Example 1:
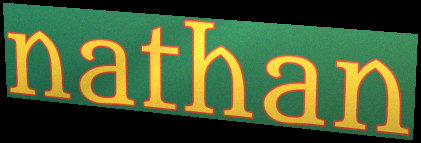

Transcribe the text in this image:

nathan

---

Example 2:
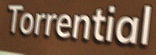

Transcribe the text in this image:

Torrential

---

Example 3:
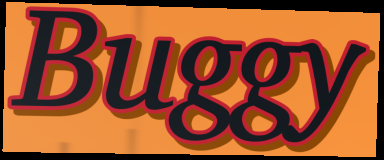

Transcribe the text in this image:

Buggy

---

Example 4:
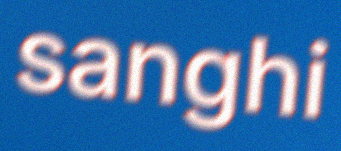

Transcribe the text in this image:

sanghi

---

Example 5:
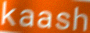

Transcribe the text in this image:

kaash